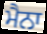
ਮੈਨਾ